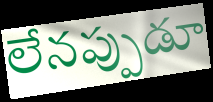
లేనప్పుడూ